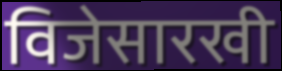
विजेसारखी